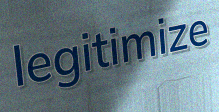
legitimize